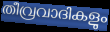
തീവ്രവാദികളും